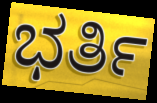
ಭರ್ತಿ